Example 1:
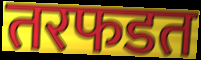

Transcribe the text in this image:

तरफडत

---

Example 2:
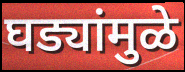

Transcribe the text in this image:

घड्यांमुळे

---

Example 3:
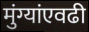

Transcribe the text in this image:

मुंग्यांएवढी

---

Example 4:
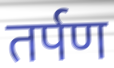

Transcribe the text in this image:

तर्पण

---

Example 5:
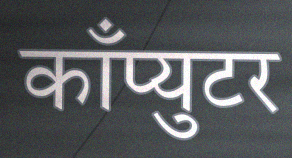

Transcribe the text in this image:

काँप्युटर